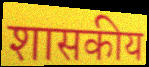
शासकीय